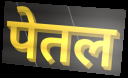
पेतल